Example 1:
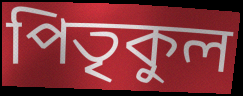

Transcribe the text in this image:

পিতৃকুল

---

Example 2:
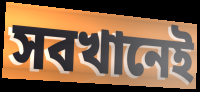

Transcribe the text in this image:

সবখানেই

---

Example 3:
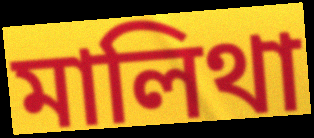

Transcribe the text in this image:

মালিথা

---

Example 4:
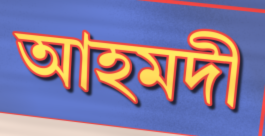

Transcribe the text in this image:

আহমদী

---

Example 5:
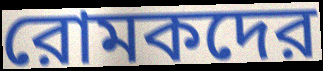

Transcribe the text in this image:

রোমকদের